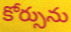
కోర్సును